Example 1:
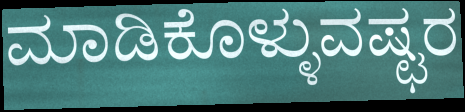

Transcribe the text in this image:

ಮಾಡಿಕೊಳ್ಳುವಷ್ಟರ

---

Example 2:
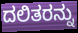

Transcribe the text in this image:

ದಲಿತರನ್ನು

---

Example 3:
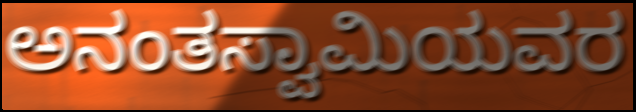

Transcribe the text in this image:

ಅನಂತಸ್ವಾಮಿಯವರ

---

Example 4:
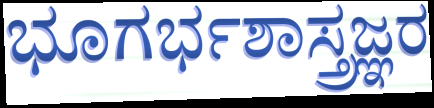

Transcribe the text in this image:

ಭೂಗರ್ಭಶಾಸ್ತ್ರಜ್ಞರ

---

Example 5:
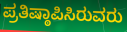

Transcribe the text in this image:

ಪ್ರತಿಷ್ಠಾಪಿಸಿರುವರು